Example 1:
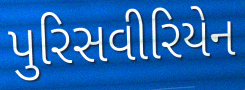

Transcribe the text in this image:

પુરિસવીરિયેન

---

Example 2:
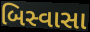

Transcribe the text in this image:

બિસ્વાસા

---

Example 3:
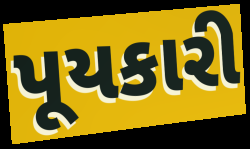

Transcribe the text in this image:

પૂયકારી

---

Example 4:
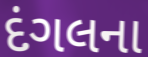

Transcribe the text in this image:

દંગલના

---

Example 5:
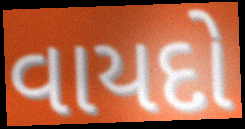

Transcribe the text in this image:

વાયદો